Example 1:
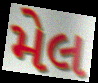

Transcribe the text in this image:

મેલ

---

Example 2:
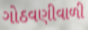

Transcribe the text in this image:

ગોઠવણીવાળી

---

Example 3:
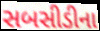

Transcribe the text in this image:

સબસીડીના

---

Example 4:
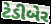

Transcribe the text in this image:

ટેડીબેર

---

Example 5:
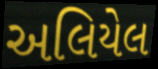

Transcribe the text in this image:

અલિયેલ